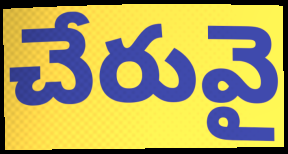
చేరువై